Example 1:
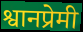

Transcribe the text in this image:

श्वानप्रेमी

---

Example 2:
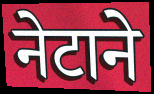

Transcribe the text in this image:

नेटाने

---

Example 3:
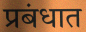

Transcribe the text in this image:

प्रबंधात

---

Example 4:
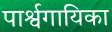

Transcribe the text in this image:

पार्श्वगायिका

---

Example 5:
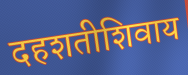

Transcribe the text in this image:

दहशतीशिवाय